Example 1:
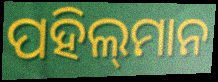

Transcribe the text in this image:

ପହିଲ୍‌ମାନ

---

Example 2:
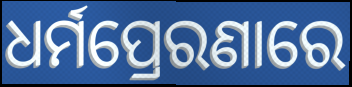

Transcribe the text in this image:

ଧର୍ମପ୍ରେରଣାରେ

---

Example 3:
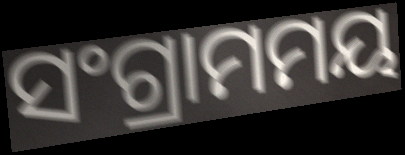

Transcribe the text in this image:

ସଂଗ୍ରାମମୟ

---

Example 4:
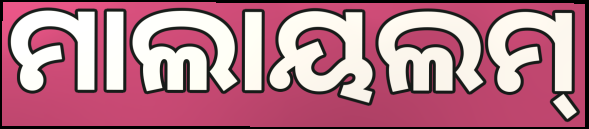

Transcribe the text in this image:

ମାଲାୟଲମ୍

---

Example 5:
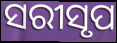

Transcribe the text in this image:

ସରୀସୃପ